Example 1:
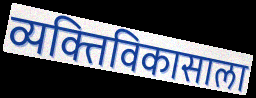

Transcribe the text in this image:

व्यक्तिविकासाला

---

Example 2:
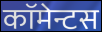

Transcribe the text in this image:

कॉमेन्टस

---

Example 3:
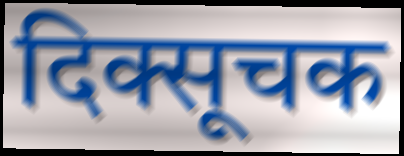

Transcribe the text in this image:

दिक्सूचक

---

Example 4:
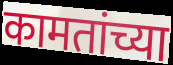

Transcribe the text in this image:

कामतांच्या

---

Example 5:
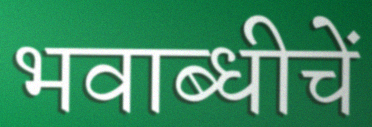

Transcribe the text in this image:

भवाब्धीचें